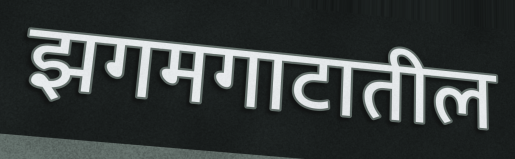
झगमगाटातील